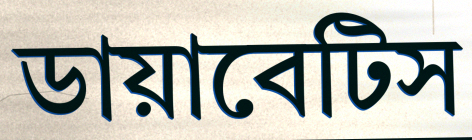
ডায়াবেটিস